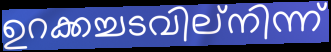
ഉറക്കച്ചടവില്നിന്ന്